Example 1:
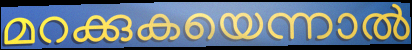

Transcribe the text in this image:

മറക്കുകയെന്നാൽ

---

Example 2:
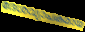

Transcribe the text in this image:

ദേശവ്യാപകമായ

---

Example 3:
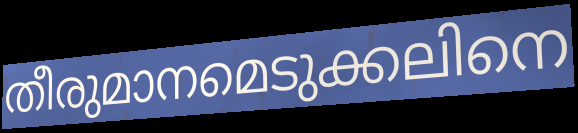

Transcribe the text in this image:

തീരുമാനമെടുക്കലിനെ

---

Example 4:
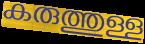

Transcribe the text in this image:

കരുത്തുള്ള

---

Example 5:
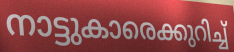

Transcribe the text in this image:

നാട്ടുകാരെക്കുറിച്ച്